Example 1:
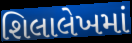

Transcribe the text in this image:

શિલાલેખમાં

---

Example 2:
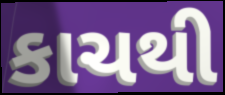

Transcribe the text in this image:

કાચથી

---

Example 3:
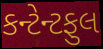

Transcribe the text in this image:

કન્ટેન્ટફુલ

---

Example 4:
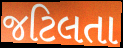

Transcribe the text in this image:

જટિલતા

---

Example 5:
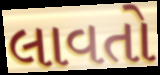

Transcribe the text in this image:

લાવતો